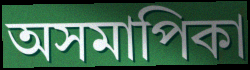
অসমাপিকা